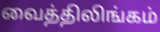
வைத்திலிங்கம்